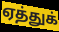
ஏத்துக்